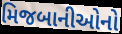
મિજબાનીઓનો